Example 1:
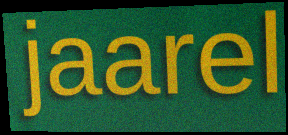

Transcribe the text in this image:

jaarel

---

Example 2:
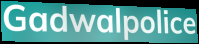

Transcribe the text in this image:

Gadwalpolice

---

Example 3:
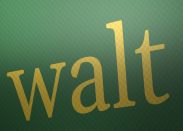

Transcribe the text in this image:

walt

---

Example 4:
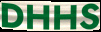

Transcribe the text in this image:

DHHS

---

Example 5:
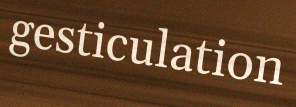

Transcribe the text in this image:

gesticulation